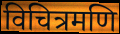
विचित्रमणि